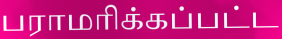
பராமரிக்கப்பட்ட